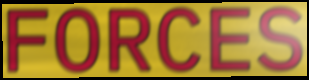
FORCES